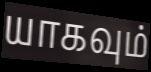
யாகவும்